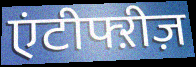
एंटीफ्ऱीज़